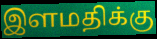
இளமதிக்கு